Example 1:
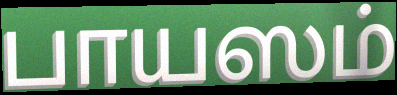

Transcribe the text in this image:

பாயஸம்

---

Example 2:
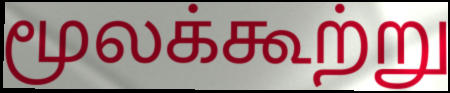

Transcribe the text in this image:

மூலக்கூற்று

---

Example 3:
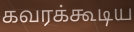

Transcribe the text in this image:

கவரக்கூடிய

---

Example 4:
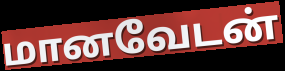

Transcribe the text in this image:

மானவேடன்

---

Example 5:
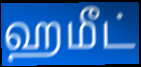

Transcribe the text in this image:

ஹமீட்